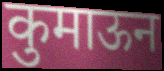
कुमाऊन